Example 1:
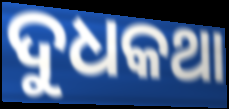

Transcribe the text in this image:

ଦୁଧକଥା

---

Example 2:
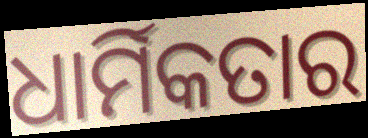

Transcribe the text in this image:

ଧାର୍ମିକତାର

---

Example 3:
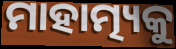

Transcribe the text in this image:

ମାହାତ୍ମ୍ୟକୁ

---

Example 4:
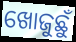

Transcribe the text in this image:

ଖୋଜୁଛୁଁ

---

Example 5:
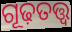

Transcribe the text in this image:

ଗୂଢ଼ତତ୍ତ୍ୱ